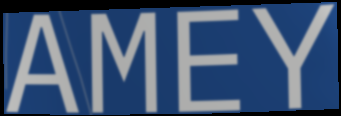
AMEY